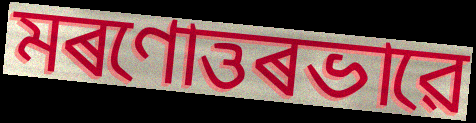
মৰণোত্তৰভাৱে